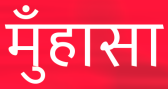
मुँहासा